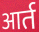
आर्त